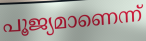
പൂജ്യമാണെന്ന്